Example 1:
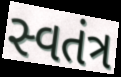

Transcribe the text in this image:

સ્વતંત્ર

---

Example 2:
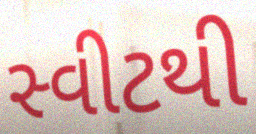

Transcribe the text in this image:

સ્વીટથી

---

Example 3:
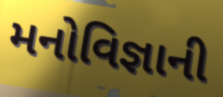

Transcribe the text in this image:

મનોવિજ્ઞાની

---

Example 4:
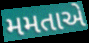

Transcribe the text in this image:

મમતાએ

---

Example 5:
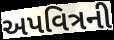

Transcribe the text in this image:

અપવિત્રની